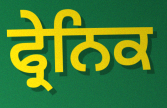
ਫ੍ਰੇਨਿਕ